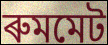
ৰুমমেট